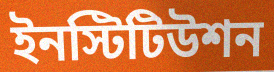
ইনস্টিটিউশন